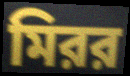
মিরর